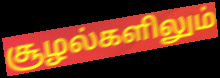
சூழல்களிலும்